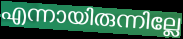
എന്നായിരുന്നില്ലേ